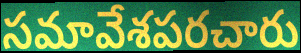
సమావేశపరచారు